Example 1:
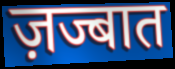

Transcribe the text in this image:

ज़ज्बात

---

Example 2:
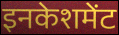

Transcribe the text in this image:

इनकेशमेंट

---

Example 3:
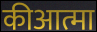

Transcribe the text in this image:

कीआत्मा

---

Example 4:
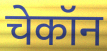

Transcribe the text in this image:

चेकॉन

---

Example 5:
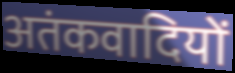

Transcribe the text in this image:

अतंकवादियों